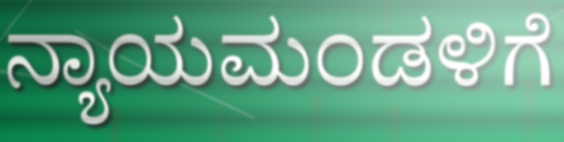
ನ್ಯಾಯಮಂಡಳಿಗೆ